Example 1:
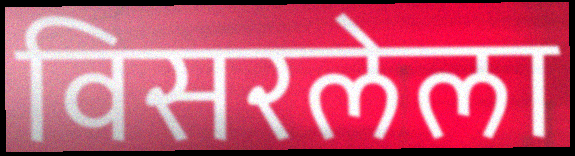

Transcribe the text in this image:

विसरलेला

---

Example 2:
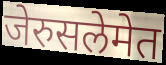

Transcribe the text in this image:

जेरुसलेमेत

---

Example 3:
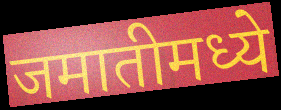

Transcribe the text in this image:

जमातीमध्ये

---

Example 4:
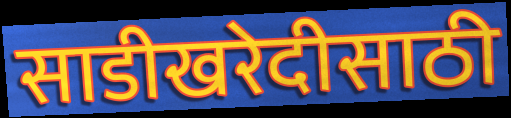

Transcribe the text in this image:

साडीखरेदीसाठी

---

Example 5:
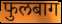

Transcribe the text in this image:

फुलबाग